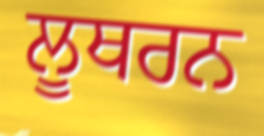
ਲੂਥਰਨ